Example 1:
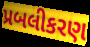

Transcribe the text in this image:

પ્રબલીકરણ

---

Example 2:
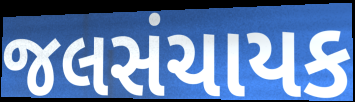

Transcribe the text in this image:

જલસંચાયક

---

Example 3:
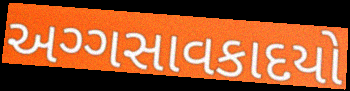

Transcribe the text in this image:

અગ્ગસાવકાદયો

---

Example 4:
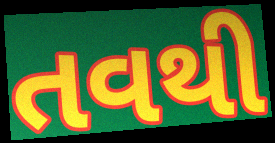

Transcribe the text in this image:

તવથી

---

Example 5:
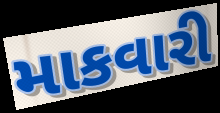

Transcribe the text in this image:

માકવારી